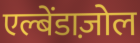
एल्बेंडाज़ोल